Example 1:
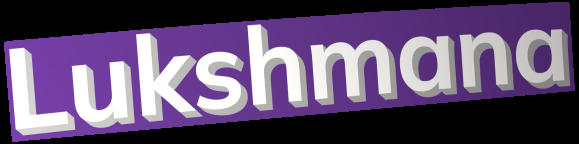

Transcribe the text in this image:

Lukshmana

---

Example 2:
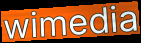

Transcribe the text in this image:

wimedia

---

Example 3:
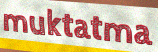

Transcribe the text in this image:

muktatma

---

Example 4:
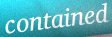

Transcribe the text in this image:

contained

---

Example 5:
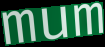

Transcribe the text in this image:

mum